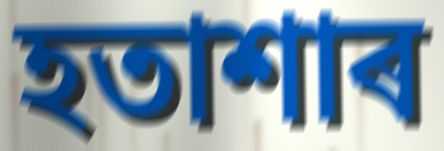
হতাশাৰ